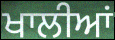
ਖਾਲੀਆਂ